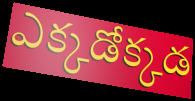
ఎక్కడోక్కడ